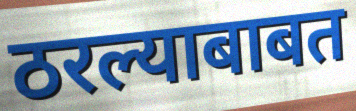
ठरल्याबाबत